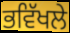
ਭਵਿੱਖਲੇ